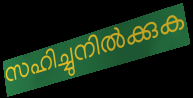
സഹിച്ചുനിൽക്കുക